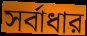
সর্বাধার